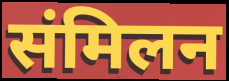
संमिलन